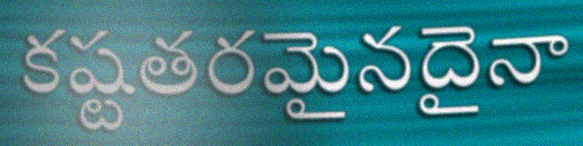
కష్టతరమైనదైనా